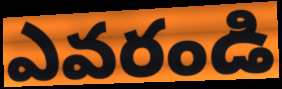
ఎవరండి